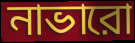
নাভারো